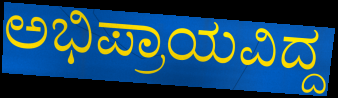
ಅಭಿಪ್ರಾಯವಿದ್ದ